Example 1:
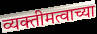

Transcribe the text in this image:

व्यक्तीमत्वाच्या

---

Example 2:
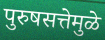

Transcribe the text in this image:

पुरुषसत्तेमुळे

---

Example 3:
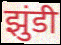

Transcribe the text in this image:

झुंडी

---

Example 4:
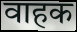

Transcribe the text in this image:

वाहक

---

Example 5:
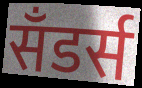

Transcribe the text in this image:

सॅंडर्स